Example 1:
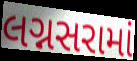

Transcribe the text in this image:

લગ્નસરામાં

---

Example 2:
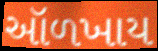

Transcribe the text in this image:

ઑળખાય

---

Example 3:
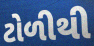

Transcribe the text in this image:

ટોળીથી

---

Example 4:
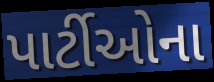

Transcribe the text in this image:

પાર્ટીઓના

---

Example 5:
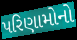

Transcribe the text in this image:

પરિણામોનો